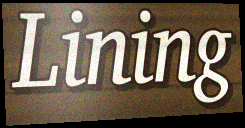
Lining